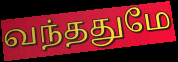
வந்ததுமே